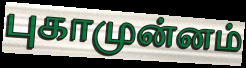
புகாமுன்னம்